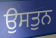
ਉਸਤੁਨ